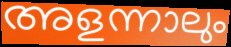
അളന്നാലും